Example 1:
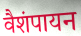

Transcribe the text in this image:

वैशंपायन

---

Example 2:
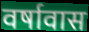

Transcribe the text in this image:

वर्षावास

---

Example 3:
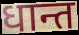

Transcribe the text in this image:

धान्त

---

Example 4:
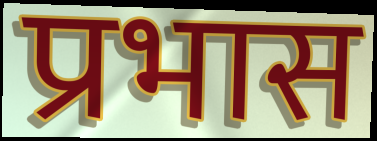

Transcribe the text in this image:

प्रभास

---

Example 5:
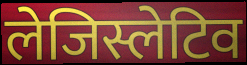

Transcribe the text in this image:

लेजिस्लेटिव